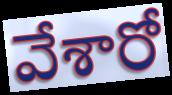
వేశారో